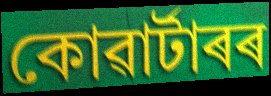
কোৱাৰ্টাৰৰ